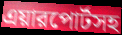
এয়ারপোর্টসহ